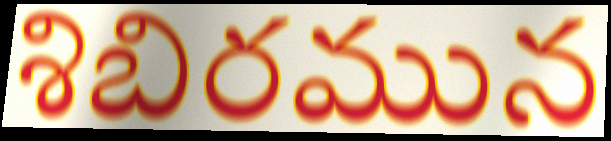
శిబిరమున